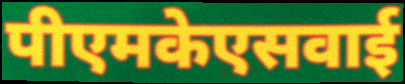
पीएमकेएसवाई